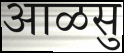
आळसु